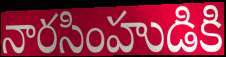
నారసింహుడికి